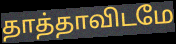
தாத்தாவிடமே